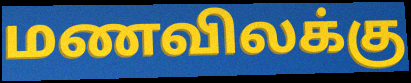
மணவிலக்கு